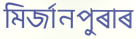
মিৰ্জানপুৰাৰ